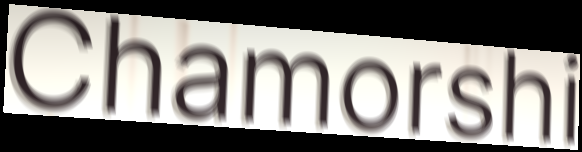
Chamorshi